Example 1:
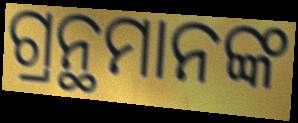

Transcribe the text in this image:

ଗ୍ରନ୍ଥମାନଙ୍କ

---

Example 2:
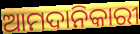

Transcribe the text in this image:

ଆମଦାନିକାରୀ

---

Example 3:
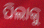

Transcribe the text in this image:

ପିଲାକୁ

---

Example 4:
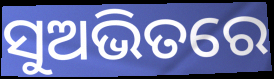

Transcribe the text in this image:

ସୁଅଭିତରେ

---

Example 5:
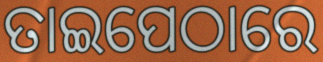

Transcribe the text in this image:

ତାଇପେଠାରେ